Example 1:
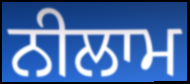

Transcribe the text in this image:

ਨੀਲਾਮ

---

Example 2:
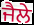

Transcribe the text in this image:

ਜੈਲੇ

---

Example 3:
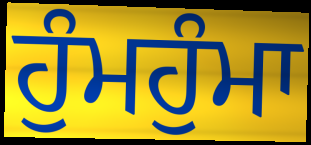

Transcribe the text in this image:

ਹੁੰਮਹੁੰਮਾ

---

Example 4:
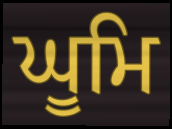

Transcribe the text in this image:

ਘੂਮਿ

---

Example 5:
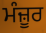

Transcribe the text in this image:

ਮੰਜ਼ੂਰ